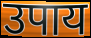
उपाय